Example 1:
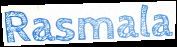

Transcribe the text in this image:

Rasmala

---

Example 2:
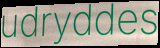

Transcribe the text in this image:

udryddes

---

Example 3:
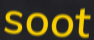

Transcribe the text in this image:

soot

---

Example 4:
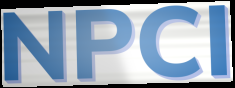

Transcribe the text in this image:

NPCI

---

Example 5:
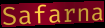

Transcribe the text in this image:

Safarna